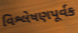
વિશ્લેષણપૂર્વક